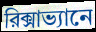
রিক্সাভ্যানে